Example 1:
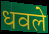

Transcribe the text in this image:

धवले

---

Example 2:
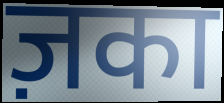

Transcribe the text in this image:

ज़का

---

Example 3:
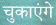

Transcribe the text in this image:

चुकाएंगे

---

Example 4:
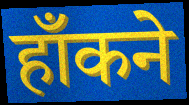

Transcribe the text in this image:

हाँकने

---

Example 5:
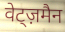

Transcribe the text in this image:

वेट्ज़मैन